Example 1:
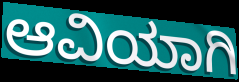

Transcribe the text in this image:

ಆವಿಯಾಗಿ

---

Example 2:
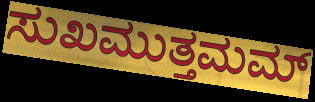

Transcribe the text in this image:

ಸುಖಮುತ್ತಮಮ್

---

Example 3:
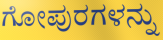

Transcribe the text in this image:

ಗೋಪುರಗಳನ್ನು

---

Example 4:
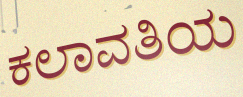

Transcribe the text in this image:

ಕಲಾವತಿಯ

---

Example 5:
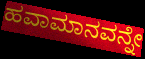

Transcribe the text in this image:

ಹವಾಮಾನವನ್ನೇ